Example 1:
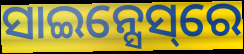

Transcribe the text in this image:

ସାଇନ୍ସେସ୍‌ରେ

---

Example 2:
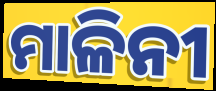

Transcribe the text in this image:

ମାଳିନୀ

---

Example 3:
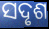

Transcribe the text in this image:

ସଦୃଶ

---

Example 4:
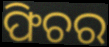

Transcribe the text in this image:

ଫିଚର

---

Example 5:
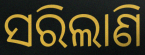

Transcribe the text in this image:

ସରିଲାଣି